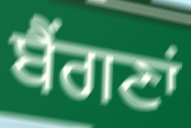
ਬੈਂਗਣਾਂ